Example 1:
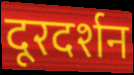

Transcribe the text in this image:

दूरदर्शन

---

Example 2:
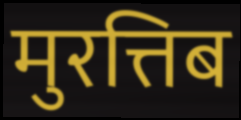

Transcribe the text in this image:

मुरत्तिब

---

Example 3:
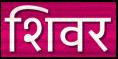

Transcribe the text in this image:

शिवर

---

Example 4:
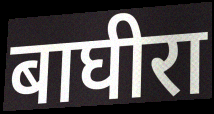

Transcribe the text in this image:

बाघीरा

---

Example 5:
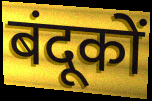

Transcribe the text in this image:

बंदूकों